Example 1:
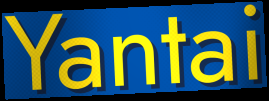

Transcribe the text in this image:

Yantai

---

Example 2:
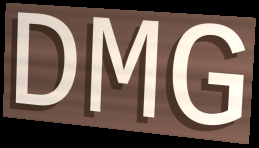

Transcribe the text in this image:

DMG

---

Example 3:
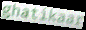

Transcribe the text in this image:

ghatikaar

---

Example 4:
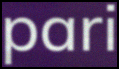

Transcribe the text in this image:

pari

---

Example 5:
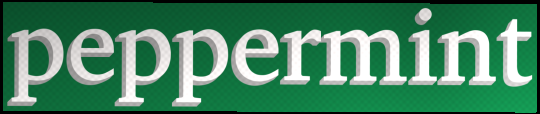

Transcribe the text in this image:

peppermint